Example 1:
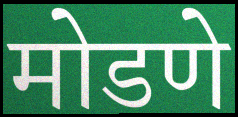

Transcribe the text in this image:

मोडणे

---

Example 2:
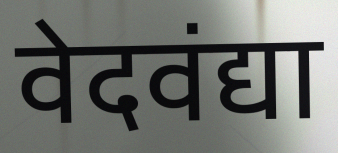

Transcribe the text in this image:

वेदवंद्या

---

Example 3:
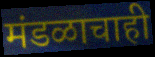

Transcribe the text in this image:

मंडळाचाही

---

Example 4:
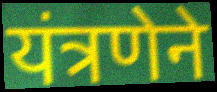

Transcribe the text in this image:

यंत्रणेने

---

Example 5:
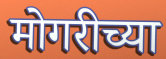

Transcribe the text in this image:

मोगरीच्या